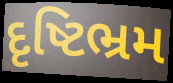
દૃષ્ટિભ્રમ